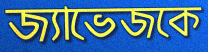
জ্যাভেজকে